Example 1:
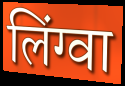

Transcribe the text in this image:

लिंग्वा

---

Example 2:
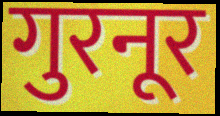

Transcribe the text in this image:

गुरनूर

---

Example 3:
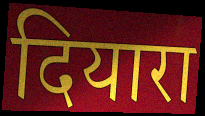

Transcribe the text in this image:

दियारा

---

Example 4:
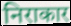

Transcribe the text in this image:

निराकार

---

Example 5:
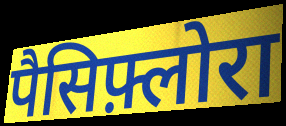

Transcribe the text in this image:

पैसिफ़्लोरा